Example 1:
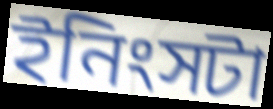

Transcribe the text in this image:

ইনিংসটা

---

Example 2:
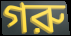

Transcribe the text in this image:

গরু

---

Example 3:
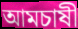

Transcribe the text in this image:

আমচাষী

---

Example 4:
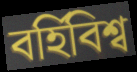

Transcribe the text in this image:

বর্হিবিশ্ব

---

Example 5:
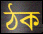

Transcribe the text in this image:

ঠক